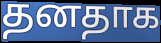
தனதாக